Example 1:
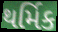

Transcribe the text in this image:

થર્મિક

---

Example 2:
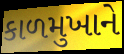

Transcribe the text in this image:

કાળમુખાને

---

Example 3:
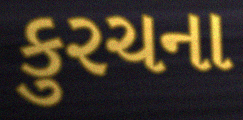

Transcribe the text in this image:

કુરચના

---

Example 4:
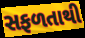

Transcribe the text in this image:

સફળતાથી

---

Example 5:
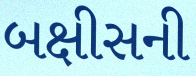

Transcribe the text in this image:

બક્ષીસની